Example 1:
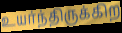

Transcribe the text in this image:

உயர்ந்திருக்கிற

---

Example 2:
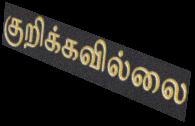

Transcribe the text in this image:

குறிக்கவில்லை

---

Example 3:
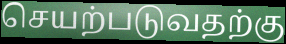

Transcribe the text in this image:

செயற்படுவதற்கு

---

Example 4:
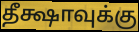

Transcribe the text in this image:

தீக்ஷாவுக்கு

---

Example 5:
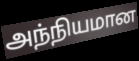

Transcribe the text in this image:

அந்நியமான